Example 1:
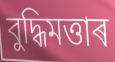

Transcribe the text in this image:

বুদ্ধিমত্তাৰ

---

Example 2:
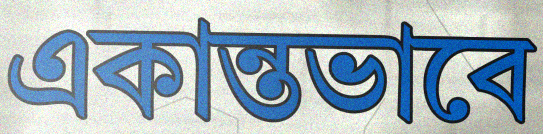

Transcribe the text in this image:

একান্তভাবে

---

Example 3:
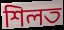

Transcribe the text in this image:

শিলত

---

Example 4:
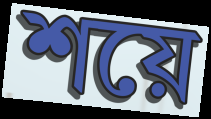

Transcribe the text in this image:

শয়ে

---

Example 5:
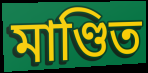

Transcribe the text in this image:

মাণ্ডিত